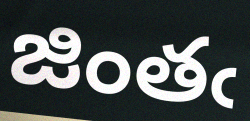
జింతఁ